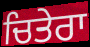
ਚਿਤੇਰਾ